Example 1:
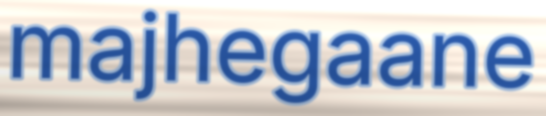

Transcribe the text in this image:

majhegaane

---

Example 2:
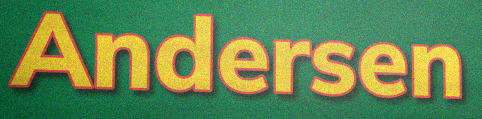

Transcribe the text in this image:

Andersen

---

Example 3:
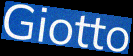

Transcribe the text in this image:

Giotto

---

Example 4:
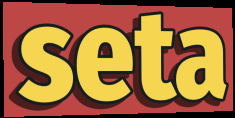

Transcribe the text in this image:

seta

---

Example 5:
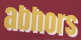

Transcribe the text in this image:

abhors